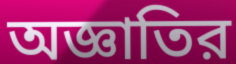
অজ্ঞাতির